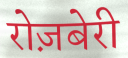
रोज़बेरी